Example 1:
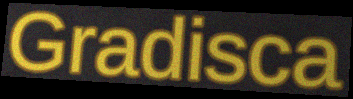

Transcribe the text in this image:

Gradisca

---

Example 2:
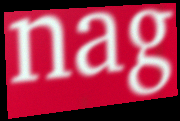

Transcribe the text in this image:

nag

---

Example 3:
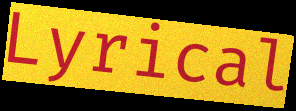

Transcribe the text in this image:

Lyrical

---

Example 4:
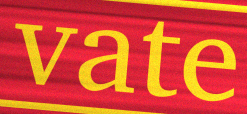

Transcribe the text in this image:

vate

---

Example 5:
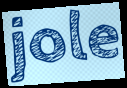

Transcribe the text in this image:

jole